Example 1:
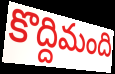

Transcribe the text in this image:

కొద్దిమంది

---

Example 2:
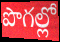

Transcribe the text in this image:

పొగల్లో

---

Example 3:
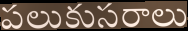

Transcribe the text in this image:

పలుకుసరాలు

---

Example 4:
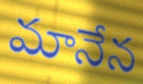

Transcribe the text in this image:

మానేన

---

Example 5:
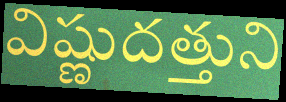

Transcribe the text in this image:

విష్ణుదత్తుని